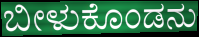
ಬೀಳುಕೊಂಡನು